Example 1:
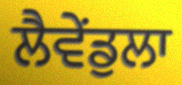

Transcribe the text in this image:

ਲੈਵੇਂਡੁਲਾ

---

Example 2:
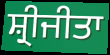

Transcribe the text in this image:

ਸ਼੍ਰੀਜੀਤਾ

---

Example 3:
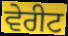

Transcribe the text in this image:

ਵੇਰੀਟ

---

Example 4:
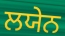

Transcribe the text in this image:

ਲਯੇਨ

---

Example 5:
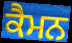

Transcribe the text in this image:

ਕੈਮਨ